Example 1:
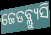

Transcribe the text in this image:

ଜେଡବ୍ଲ୍ୟୁସି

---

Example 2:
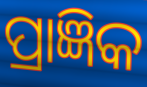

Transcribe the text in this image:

ପ୍ରାଜ୍ଞିକ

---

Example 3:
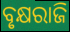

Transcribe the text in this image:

ବୃକ୍ଷରାଜି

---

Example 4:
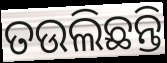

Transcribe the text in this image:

ତଉଲିଛନ୍ତି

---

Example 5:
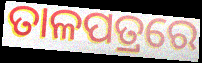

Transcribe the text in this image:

ତାଳପତ୍ରରେ